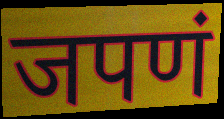
जपणं